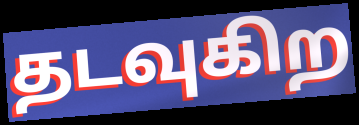
தடவுகிற